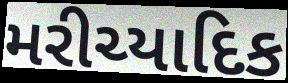
મરીચ્યાદિક